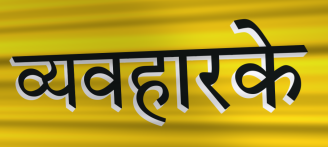
व्यवहारके